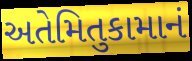
અતેમિતુકામાનં